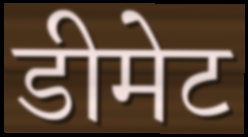
डीमेट